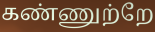
கண்ணுற்றே